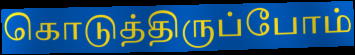
கொடுத்திருப்போம்